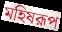
মহিষরূপ